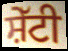
ਸ਼ੇੱਟੀ